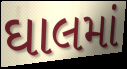
ઘાલમાં